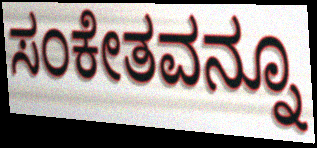
ಸಂಕೇತವನ್ನೂ